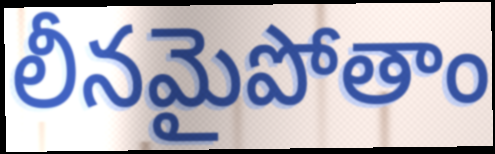
లీనమైపోతాం